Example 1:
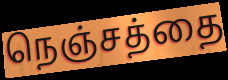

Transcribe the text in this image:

நெஞ்சத்தை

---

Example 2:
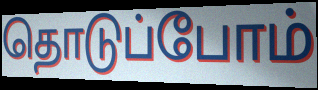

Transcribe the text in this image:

தொடுப்போம்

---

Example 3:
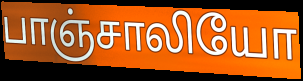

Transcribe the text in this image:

பாஞ்சாலியோ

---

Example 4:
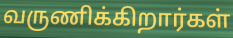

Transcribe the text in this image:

வருணிக்கிறார்கள்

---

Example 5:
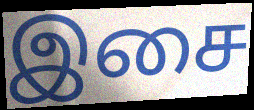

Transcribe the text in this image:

இசை